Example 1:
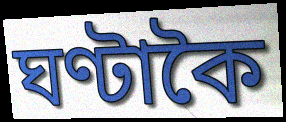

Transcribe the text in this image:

ঘণ্টাকৈ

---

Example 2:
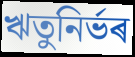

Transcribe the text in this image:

ঋতুনিৰ্ভৰ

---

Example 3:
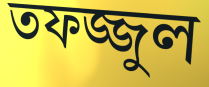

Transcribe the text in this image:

তফজ্জুল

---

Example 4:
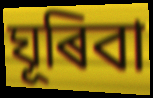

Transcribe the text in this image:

ঘূৰিবা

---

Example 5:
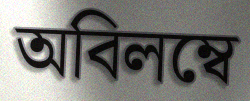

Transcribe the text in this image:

অবিলম্বে